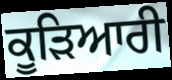
ਕੂੜਿਆਰੀ